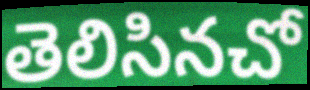
తెలిసినచో